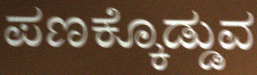
ಪಣಕ್ಕೊಡ್ಡುವ